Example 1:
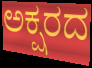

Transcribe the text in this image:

ಅಕ್ಷರದ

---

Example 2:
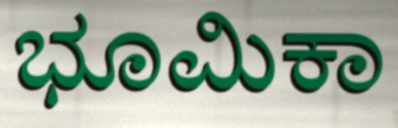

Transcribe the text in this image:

ಭೂಮಿಕಾ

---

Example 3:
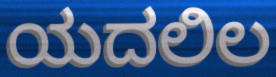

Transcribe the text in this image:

ಯದಲಿಲ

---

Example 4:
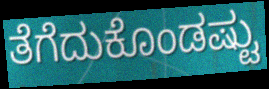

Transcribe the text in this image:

ತೆಗೆದುಕೊಂಡಷ್ಟು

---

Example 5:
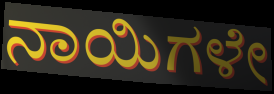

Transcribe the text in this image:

ನಾಯಿಗಳೇ